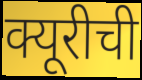
क्यूरीची